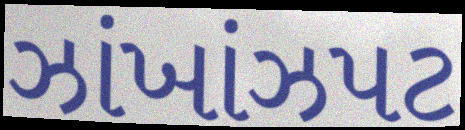
ઝાંખાંઝપટ